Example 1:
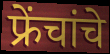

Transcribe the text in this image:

फ्रेंचांचे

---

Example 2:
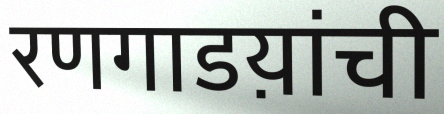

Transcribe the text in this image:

रणगाडय़ांची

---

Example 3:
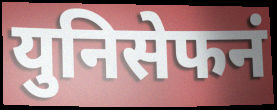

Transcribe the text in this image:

युनिसेफनं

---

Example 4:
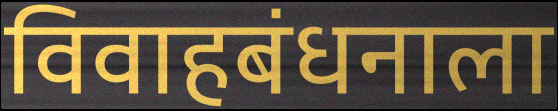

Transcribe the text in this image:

विवाहबंधनाला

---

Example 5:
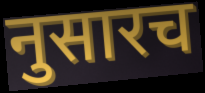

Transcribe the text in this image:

नुसारच